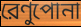
রেণুপোনা